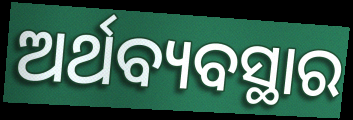
ଅର୍ଥବ୍ୟବସ୍ଥାର